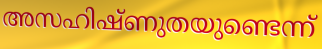
അസഹിഷ്ണുതയുണ്ടെന്ന്